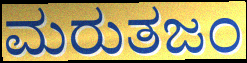
ಮರುತಜಂ